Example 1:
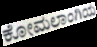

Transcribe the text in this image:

ಕೋಮಲಾಂಗಿಯ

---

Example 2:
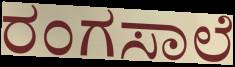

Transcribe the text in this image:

ರಂಗಸಾಲೆ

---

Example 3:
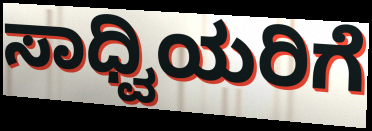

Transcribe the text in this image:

ಸಾಧ್ವಿಯರಿಗೆ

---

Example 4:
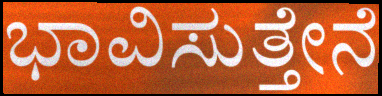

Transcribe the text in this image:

ಭಾವಿಸುತ್ತೇನೆ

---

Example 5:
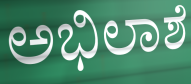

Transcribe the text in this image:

ಅಭಿಲಾಶೆ